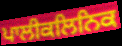
ਪਾਲੀਕਲਿਨਿਕ